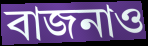
বাজনাও